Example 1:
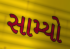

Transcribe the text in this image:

સામ્યો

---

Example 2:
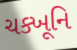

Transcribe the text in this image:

ચક્ખૂનિ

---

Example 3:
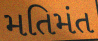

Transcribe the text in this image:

મતિમંત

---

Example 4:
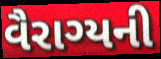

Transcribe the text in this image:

વૈરાગ્યની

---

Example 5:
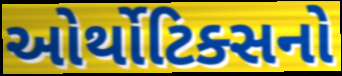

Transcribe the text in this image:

ઓર્થોટિક્સનો